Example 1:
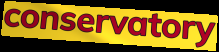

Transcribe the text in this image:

conservatory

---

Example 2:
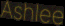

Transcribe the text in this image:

Ashlee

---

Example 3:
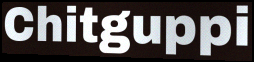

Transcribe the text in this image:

Chitguppi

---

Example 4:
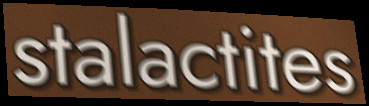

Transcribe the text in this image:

stalactites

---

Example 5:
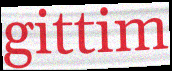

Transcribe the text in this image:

gittim